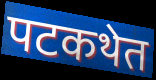
पटकथेत